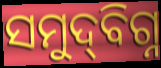
ସମୁଦ୍‌ବିଗ୍ନ